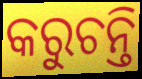
କରୁଚନ୍ତି